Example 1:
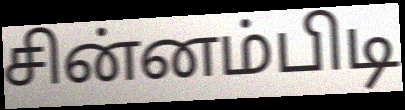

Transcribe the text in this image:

சின்னம்பிடி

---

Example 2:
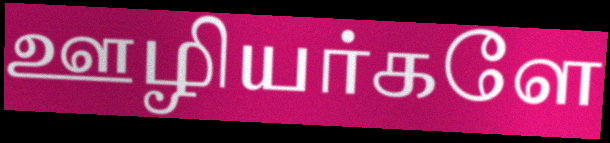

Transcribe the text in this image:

ஊழியர்களே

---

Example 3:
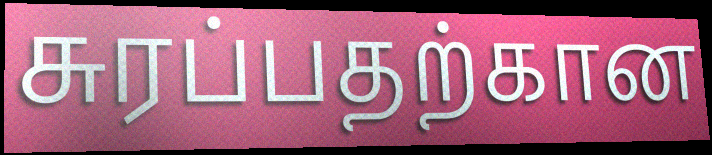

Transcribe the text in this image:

சுரப்பதற்கான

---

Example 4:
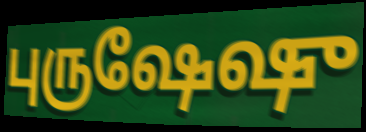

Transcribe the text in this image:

புருஷேஷு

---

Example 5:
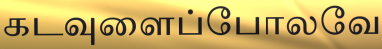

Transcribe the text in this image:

கடவுளைப்போலவே